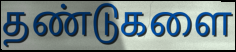
தண்டுகளை